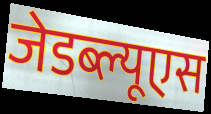
जेडब्ल्यूएस